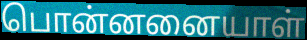
பொன்னனையாள்